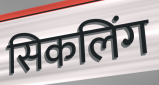
सिकलिंग